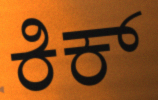
ಕಿಕ್